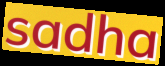
sadha